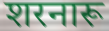
शरनारू